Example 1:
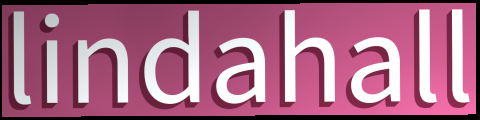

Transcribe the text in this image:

lindahall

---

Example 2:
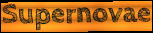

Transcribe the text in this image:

Supernovae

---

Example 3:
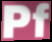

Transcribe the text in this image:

Pf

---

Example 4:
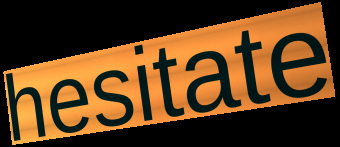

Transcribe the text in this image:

hesitate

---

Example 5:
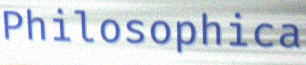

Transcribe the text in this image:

Philosophica